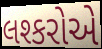
લશ્કરોએ